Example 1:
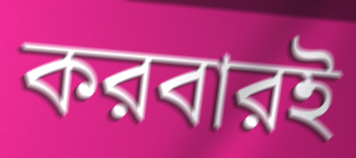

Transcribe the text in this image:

করবারই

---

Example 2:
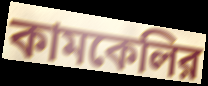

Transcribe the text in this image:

কামকেলির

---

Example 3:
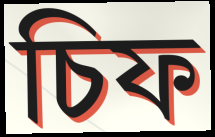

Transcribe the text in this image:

চিফ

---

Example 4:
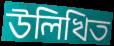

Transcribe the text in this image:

উলিখিত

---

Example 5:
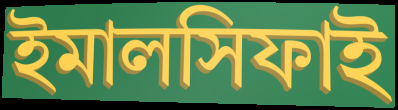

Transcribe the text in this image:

ইমালসিফাই